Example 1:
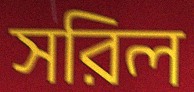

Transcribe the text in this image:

সরিল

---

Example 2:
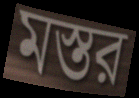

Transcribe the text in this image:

মস্তর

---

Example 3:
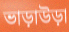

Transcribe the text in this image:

ভাড়াউড়া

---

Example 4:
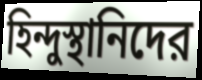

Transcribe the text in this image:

হিন্দুস্থানিদের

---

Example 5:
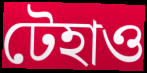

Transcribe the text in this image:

টেহাও